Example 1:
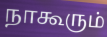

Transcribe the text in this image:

நாகூரும்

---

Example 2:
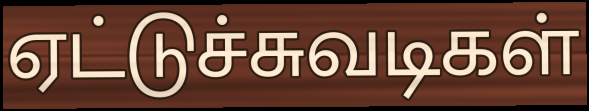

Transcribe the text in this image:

ஏட்டுச்சுவடிகள்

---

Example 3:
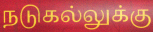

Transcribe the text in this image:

நடுகல்லுக்கு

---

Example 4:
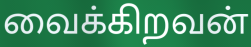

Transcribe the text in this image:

வைக்கிறவன்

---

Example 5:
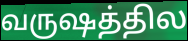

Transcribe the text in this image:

வருஷத்தில